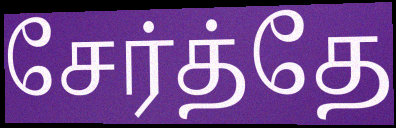
சேர்த்தே